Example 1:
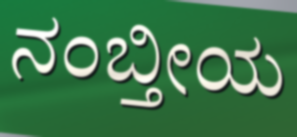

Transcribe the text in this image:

ನಂಬ್ತೀಯ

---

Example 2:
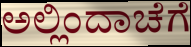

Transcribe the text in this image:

ಅಲ್ಲಿಂದಾಚೆಗೆ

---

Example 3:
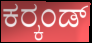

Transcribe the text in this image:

ಕರ್‍ಕಂಡ್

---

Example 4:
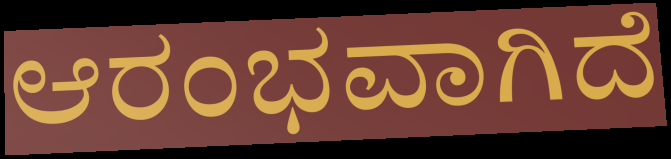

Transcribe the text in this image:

ಆರಂಭವಾಗಿದೆ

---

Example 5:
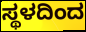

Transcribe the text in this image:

ಸ್ಥಳದಿಂದ